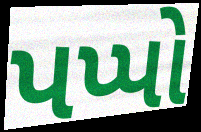
પપ્પો